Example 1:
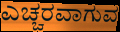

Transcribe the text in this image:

ಎಚ್ಚರವಾಗುವ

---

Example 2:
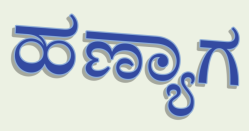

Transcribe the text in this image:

ಹಣ್ಯಾಗ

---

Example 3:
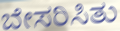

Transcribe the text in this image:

ಬೇಸರಿಸಿತು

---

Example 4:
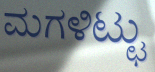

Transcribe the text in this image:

ಮಗಳಿಟ್ಟು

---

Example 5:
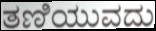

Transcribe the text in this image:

ತಣಿಯುವದು